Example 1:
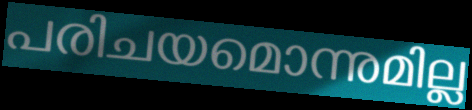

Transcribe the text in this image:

പരിചയമൊന്നുമില്ല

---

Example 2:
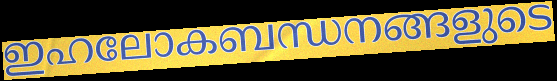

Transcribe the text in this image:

ഇഹലോകബന്ധനങ്ങളുടെ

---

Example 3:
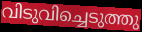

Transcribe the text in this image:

വിടുവിച്ചെടുത്തു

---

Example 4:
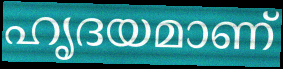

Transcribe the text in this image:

ഹൃദയമാണ്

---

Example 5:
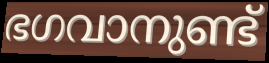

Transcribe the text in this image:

ഭഗവാനുണ്ട്